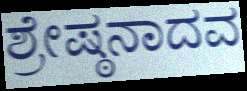
ಶ್ರೇಷ್ಠನಾದವ